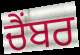
ਚੈਂਬਰ